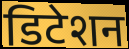
डिटेशन